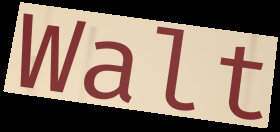
Walt